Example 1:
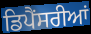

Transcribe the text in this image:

ਡਿਪੈਂਸਰੀਆਂ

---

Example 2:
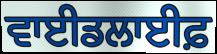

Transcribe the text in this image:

ਵਾਈਡਲਾਈਫ਼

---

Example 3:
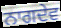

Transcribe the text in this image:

ਨਾਗਦੇਵ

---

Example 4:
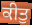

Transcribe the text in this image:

ਕੀਤੁ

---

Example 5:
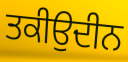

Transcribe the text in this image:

ਤਕੀਉਦੀਨ